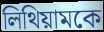
লিথিয়ামকে